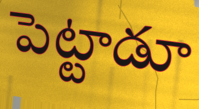
పెట్టాడూ